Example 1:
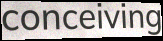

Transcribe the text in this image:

conceiving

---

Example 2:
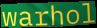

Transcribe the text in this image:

warhol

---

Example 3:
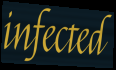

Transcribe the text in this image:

infected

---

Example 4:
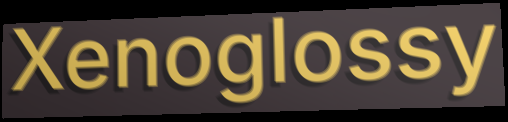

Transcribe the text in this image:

Xenoglossy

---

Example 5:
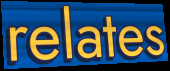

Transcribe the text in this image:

relates